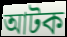
আটক